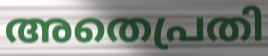
അതെപ്രതി